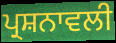
ਪ੍ਰਸ਼ਨਾਵਲੀ